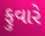
ફુવારે